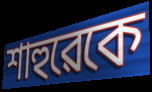
শাহুৱেকে